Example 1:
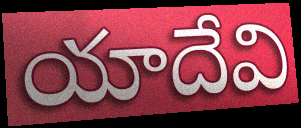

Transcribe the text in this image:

యాదేవి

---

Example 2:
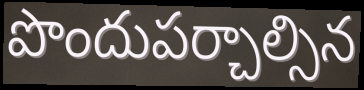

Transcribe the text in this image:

పొందుపర్చాల్సిన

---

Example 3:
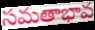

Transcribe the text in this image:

సమతాభావ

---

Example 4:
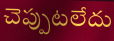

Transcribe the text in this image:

చెప్పుటలేదు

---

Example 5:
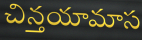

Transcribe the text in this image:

చిన్తయామాస